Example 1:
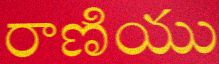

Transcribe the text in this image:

రాణియు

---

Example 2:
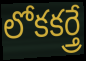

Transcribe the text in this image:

లోకకర్త్రే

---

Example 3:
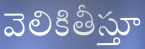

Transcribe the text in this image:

వెలికితీస్తూ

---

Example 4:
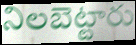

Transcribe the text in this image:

నిలబెట్టారు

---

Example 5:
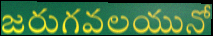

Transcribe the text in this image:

జరుగవలయునో